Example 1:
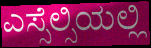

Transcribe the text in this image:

ಎಸ್ಸೆಲ್ಸಿಯಲ್ಲಿ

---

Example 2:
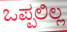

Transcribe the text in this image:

ಒಪ್ಪಲಿಲ್ಲ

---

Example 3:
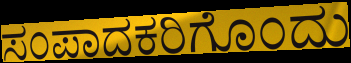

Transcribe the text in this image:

ಸಂಪಾದಕರಿಗೊಂದು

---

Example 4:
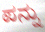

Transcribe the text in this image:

ಪನ್ನು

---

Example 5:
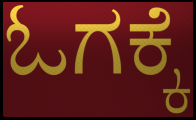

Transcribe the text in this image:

ಓಗಕ್ಕೆ